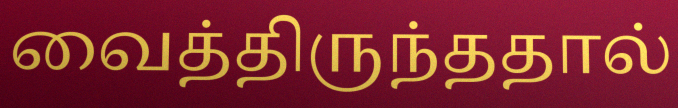
வைத்திருந்ததால்